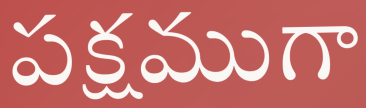
పక్షముగా